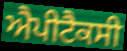
ਐਪੀਟੈਕਸੀ